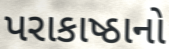
પરાકાષ્ઠાનો